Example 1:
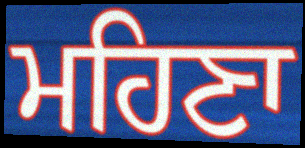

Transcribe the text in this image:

ਮਹਿਣਾ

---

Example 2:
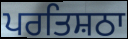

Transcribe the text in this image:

ਪਰਤਿਸ਼ਠਾ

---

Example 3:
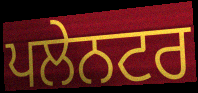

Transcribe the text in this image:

ਪਲੇਨਟਰ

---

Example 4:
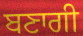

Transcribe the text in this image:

ਬਣਾਗੀ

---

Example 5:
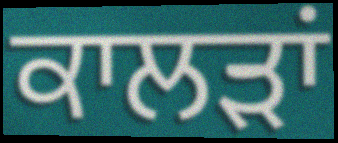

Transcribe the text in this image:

ਕਾਲੜਾਂ